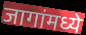
जागांमध्ये